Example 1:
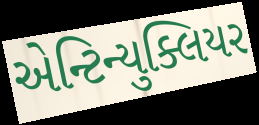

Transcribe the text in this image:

એન્ટિન્યુક્લિયર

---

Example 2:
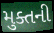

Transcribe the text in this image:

મુક્તની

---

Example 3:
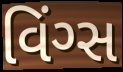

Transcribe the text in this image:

વિંગ્સ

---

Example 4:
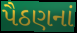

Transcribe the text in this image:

પૈઠણનાં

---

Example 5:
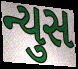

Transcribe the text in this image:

ન્યુસ